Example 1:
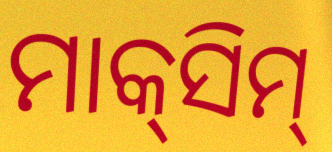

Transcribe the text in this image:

ମାକ୍‍ସିମ୍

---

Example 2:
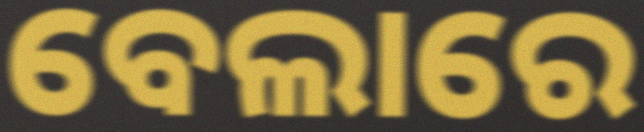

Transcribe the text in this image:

ବେଲାରେ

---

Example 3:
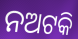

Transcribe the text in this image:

ନଅଟକି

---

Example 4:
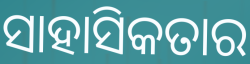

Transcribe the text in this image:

ସାହାସିକତାର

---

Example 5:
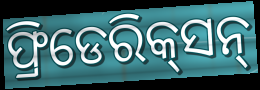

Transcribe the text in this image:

ଫ୍ରିଡେରିକ୍‌ସନ୍